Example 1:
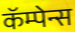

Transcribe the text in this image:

कॅम्पेन्स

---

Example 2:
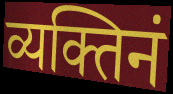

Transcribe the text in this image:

व्यक्तिनं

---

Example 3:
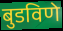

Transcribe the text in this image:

बुडविणे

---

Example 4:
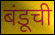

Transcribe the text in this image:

बंडूची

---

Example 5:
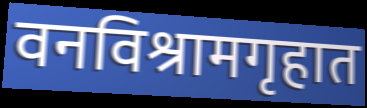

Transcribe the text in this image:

वनविश्रामगृहात